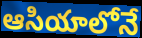
ఆసియాలోనే